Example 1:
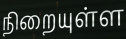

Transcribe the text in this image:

நிறையுள்ள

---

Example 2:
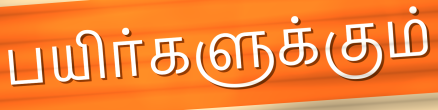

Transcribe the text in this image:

பயிர்களுக்கும்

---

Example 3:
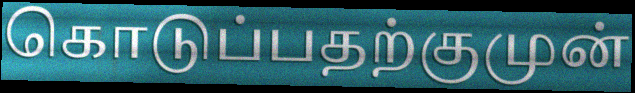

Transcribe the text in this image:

கொடுப்பதற்குமுன்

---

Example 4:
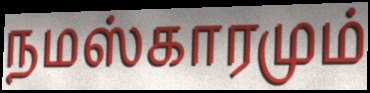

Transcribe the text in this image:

நமஸ்காரமும்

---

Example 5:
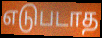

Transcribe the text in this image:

எடுபடாத